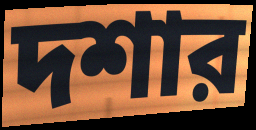
দশার